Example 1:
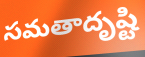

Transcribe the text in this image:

సమతాదృష్టి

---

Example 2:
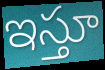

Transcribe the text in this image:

ఇస్తూ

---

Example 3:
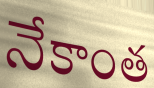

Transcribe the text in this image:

నేకాంత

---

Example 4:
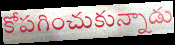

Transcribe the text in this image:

కోపగించుకున్నాడు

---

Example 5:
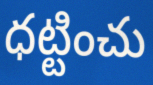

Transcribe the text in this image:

ధట్టించు